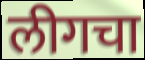
लीगचा